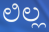
ಲಿಲ್ಲ